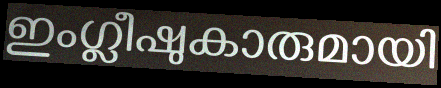
ഇംഗ്ലീഷുകാരുമായി